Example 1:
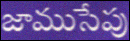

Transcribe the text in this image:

జాముసేపు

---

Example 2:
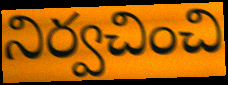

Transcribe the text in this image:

నిర్వచించి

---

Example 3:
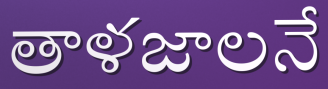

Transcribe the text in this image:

తాళజాలనే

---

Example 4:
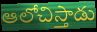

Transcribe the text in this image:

ఆలోచిస్తాడు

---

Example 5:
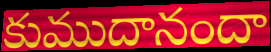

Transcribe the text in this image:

కుముదానందా